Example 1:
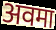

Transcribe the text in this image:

अवमा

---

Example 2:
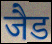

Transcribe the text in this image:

जैड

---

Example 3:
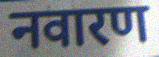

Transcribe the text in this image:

नवारण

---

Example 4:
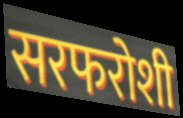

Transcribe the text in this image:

सरफरोशी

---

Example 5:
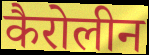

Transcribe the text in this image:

कैरोलीन